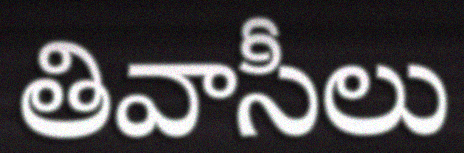
తివాసీలు